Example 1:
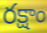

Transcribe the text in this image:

రక్షాం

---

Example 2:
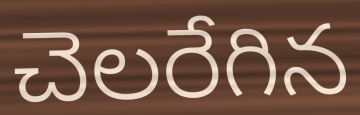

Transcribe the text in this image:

చెలరేగిన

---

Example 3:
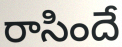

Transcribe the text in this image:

రాసిందే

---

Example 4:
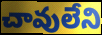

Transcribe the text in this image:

చావులేని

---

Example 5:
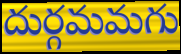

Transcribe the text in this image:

దుర్గమమగు